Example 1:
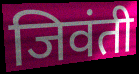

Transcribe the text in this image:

जिवंती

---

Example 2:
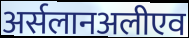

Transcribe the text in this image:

अर्सलानअलीएव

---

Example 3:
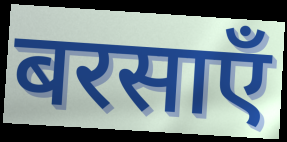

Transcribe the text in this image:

बरसाएँ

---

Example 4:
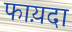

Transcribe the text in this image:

फाय़दा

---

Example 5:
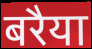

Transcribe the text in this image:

बरैया